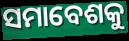
ସମାବେଶକୁ